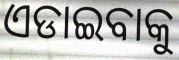
ଏଡାଇବାକୁ